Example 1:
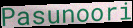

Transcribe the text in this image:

Pasunoori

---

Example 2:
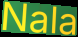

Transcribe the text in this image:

Nala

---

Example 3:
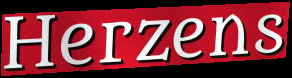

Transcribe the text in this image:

Herzens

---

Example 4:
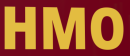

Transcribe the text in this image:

HMO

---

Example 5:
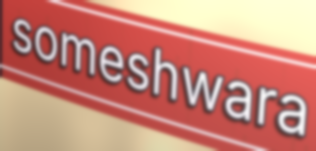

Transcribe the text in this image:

someshwara